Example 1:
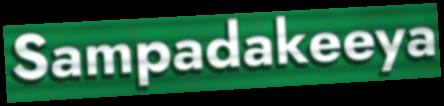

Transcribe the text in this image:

Sampadakeeya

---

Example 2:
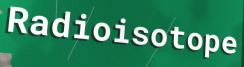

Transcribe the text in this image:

Radioisotope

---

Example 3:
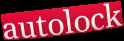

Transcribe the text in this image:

autolock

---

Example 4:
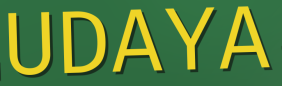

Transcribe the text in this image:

UDAYA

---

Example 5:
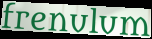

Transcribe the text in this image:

frenulum